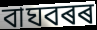
বাঘবৰৰ